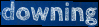
downing